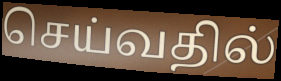
செய்வதில்